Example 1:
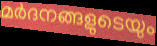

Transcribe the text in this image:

മർദനങ്ങളുടെയും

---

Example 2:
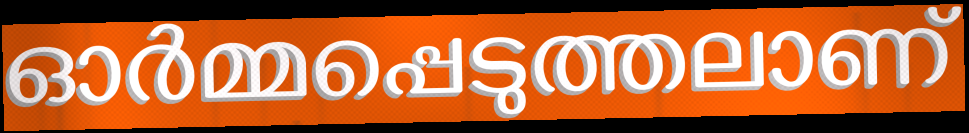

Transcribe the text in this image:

ഓർമ്മപ്പെടുത്തലാണ്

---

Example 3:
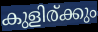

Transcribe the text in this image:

കുളിര്ക്കും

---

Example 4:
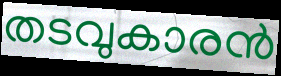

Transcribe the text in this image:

തടവുകാരൻ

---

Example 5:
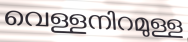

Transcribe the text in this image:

വെള്ളനിറമുള്ള